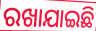
ରଖାଯାଇଛି